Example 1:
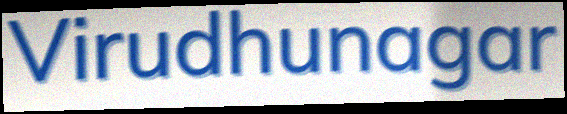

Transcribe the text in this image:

Virudhunagar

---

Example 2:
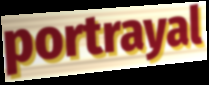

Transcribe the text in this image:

portrayal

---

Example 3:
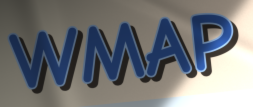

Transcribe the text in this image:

WMAP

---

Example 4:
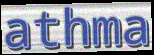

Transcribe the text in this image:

athma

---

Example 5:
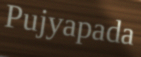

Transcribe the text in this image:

Pujyapada